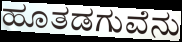
ಹೂತಡಗುವೆನು